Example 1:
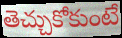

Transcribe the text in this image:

తెచ్చుకోకుంటే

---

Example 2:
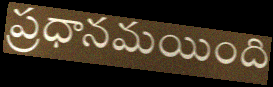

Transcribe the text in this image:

ప్రధానమయింది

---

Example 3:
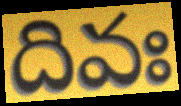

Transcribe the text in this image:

దివః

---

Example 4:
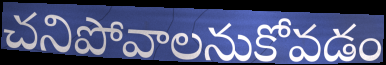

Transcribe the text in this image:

చనిపోవాలనుకోవడం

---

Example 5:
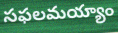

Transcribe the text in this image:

సఫలమయ్యాం